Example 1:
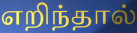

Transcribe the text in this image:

எறிந்தால்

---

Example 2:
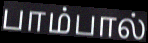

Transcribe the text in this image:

பாம்பால்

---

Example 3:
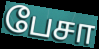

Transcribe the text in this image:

பேசா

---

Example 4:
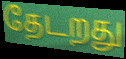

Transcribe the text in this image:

தேடறது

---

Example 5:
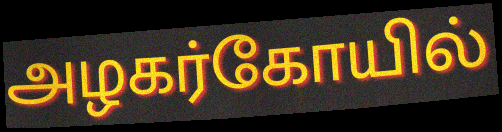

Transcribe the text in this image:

அழகர்கோயில்